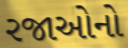
રજાઓનો